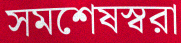
সমশেষস্বরা